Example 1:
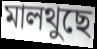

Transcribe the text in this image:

মালথুছে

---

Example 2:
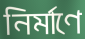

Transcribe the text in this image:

নিৰ্মাণে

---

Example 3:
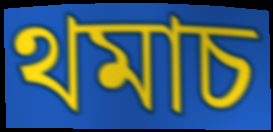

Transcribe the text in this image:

থমাচ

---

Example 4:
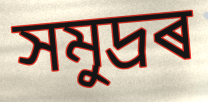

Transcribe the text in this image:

সমুদ্ৰৰ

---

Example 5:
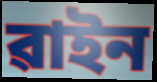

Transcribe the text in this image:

ৱাইন